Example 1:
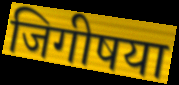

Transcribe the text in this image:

जिगीषया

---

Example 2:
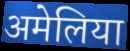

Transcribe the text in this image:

अमेलिया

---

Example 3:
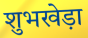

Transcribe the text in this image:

शुभखेड़ा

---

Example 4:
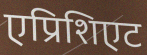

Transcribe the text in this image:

एप्रिशिएट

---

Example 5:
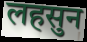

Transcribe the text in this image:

लहसुन